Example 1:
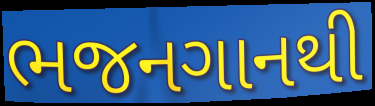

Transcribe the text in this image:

ભજનગાનથી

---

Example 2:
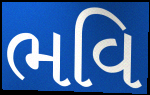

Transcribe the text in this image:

ભવિ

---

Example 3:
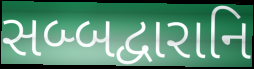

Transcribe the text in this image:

સબ્બદ્વારાનિ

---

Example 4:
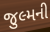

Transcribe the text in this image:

જુલ્મની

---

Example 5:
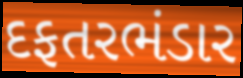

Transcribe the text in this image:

દફતરભંડાર